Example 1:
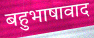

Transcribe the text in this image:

बहुभाषावाद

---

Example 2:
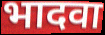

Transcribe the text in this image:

भादवा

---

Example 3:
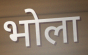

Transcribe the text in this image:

भोला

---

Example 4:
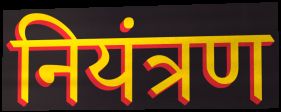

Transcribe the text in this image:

नियंत्रण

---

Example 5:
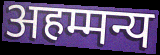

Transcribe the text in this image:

अहम्मन्य